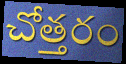
చోత్తరం